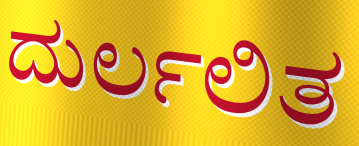
ದುರ್ಲಲಿತ